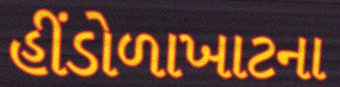
હીંડોળાખાટના